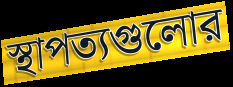
স্থাপত্যগুলোর